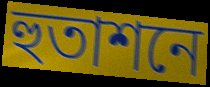
হুতাশনে